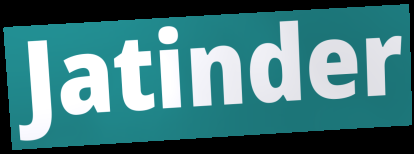
Jatinder